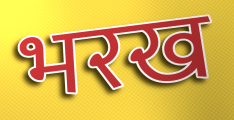
भरख